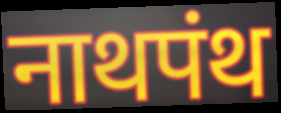
नाथपंथ